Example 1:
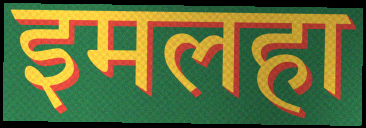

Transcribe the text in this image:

इमलहा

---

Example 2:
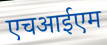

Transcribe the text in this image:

एचआईएम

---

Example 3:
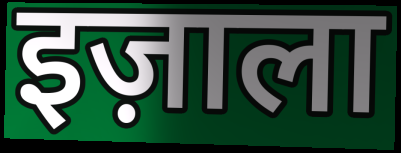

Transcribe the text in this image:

इज़ाला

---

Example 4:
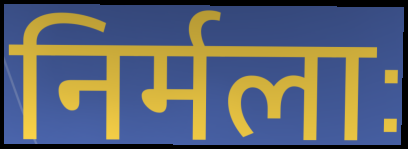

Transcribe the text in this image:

निर्मलाः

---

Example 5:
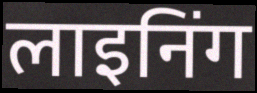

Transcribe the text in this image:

लाइनिंग